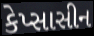
કેપ્સાસીન